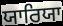
ਯਾਰਿਯਾ